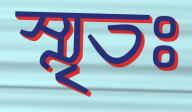
স্মৃতঃ